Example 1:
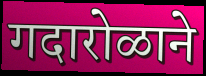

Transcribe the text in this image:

गदारोळाने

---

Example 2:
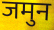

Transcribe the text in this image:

जमुन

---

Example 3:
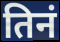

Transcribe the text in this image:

तिनं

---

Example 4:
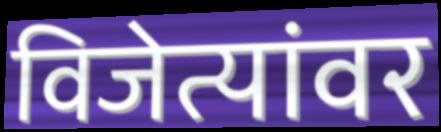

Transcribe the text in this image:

विजेत्यांवर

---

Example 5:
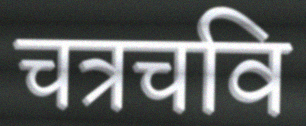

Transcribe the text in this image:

चत्रचवि